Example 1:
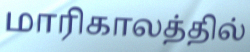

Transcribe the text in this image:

மாரிகாலத்தில்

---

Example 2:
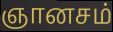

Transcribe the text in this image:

ஞானசம்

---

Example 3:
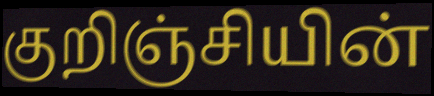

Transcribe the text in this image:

குறிஞ்சியின்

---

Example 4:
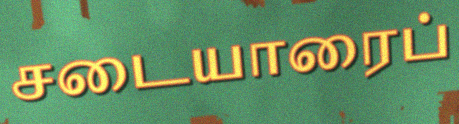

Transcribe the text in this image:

சடையாரைப்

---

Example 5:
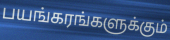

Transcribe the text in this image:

பயங்கரங்களுக்கும்